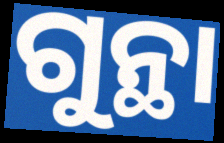
ଗୁନ୍ଥା